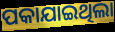
ପକାଯାଇଥିଲା